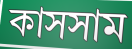
কাসসাম